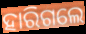
ହାରିଗଲେ